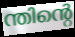
ന്തിന്റെ